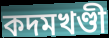
কদমখণ্ডী